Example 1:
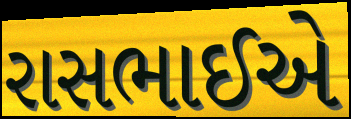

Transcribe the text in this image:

રાસભાઈએ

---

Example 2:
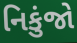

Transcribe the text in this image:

નિકુંજો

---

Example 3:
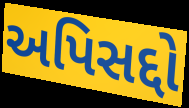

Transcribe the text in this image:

અપિસદ્દો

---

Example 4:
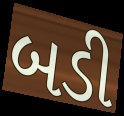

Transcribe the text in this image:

બડી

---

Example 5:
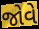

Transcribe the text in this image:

જોવે